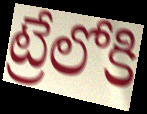
ట్రేలోకి